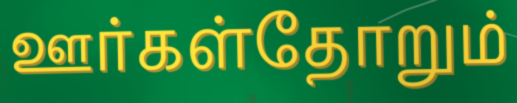
ஊர்கள்தோறும்